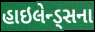
હાઇલેન્ડ્સના